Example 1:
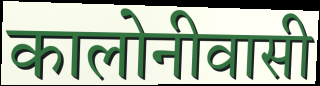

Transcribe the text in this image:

कालोनीवासी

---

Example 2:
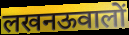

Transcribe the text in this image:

लखनऊवालों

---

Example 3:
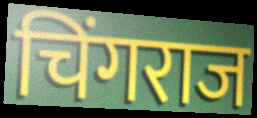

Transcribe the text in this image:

चिंगराज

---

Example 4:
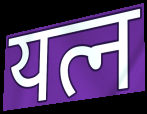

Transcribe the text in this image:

यत्न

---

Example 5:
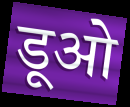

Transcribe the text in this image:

डूओ